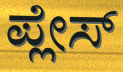
ಪ್ಲೇಸ್